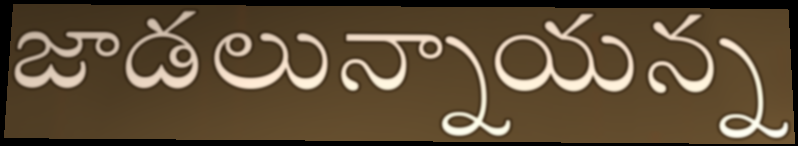
జాడలున్నాయన్న